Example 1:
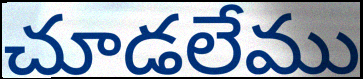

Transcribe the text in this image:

చూడలేము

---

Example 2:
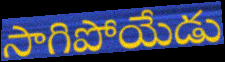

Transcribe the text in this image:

సాగిపోయేడు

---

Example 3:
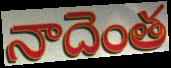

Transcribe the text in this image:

నాదెంత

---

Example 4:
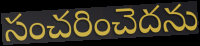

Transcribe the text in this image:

సంచరించెదను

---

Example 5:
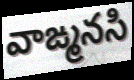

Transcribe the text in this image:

వాఙ్మనసి